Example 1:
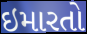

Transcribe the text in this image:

ઇમારતો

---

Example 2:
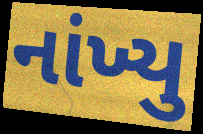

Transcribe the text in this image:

નાંખ્યુ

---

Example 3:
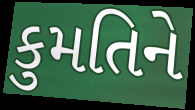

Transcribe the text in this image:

કુમતિને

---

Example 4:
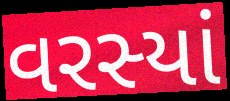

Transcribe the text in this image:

વરસ્યાં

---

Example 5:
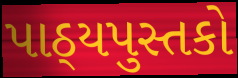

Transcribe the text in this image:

પાઠ્યપુસ્તકો